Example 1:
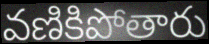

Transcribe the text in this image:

వణికిపోతారు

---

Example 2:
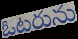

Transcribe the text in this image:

ఓటరును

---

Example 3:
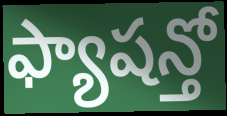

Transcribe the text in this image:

ఫ్యాషన్తో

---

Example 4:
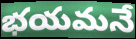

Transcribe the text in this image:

భయమనే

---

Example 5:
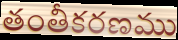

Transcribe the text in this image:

తంతీకరణము